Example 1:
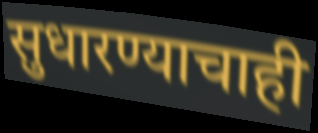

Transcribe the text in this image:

सुधारण्याचाही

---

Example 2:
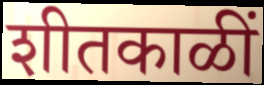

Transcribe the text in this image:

शीतकाळीं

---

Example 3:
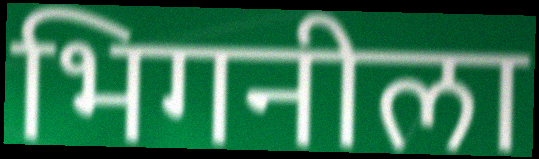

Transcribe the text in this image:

भिगनीला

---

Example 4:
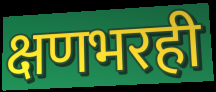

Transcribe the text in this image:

क्षणभरही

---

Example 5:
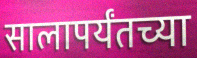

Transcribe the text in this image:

सालापर्यंतच्या